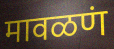
मावळणं